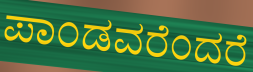
ಪಾಂಡವರೆಂದರೆ